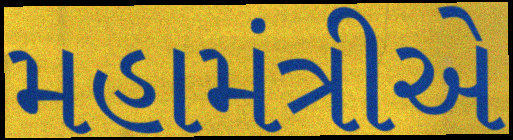
મહામંત્રીએ